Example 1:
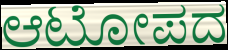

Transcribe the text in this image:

ಆಟೋಪದ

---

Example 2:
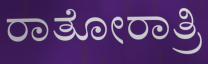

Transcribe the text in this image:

ರಾತೋರಾತ್ರಿ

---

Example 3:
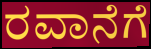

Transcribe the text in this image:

ರವಾನೆಗೆ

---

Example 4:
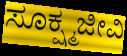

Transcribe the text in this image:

ಸೂಕ್ಷ್ಮಜೀವಿ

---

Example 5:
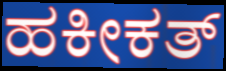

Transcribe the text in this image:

ಹಕೀಕತ್